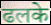
ढलके